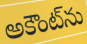
అకౌంట్‌ను